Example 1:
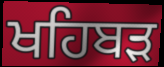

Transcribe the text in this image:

ਖਹਿਬੜ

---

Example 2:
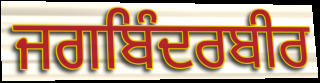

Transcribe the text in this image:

ਜਗਬਿੰਦਰਬੀਰ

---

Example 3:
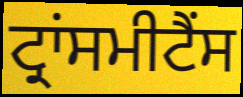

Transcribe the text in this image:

ਟ੍ਰਾਂਸਮੀਟੈਂਸ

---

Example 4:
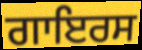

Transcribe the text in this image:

ਗਾਇਰਸ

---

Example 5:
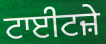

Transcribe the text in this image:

ਟਾਈਟਜ਼ੇ